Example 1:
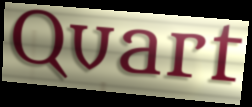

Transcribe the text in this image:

Quart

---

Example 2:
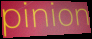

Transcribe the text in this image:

pinion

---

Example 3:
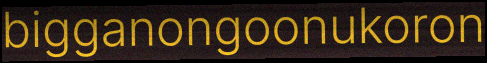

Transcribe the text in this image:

bigganongoonukoron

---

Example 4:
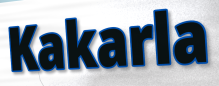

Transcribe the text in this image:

Kakarla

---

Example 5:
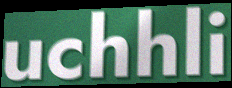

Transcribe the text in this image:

uchhli